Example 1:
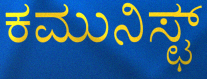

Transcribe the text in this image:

ಕಮುನಿಸ್ಟ್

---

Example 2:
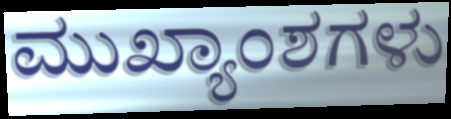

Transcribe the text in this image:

ಮುಖ್ಯಾಂಶಗಳು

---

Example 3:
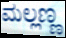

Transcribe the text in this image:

ಮಲ್ಲಣ್ಣ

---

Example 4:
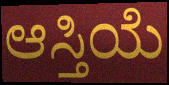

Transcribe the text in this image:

ಆಸ್ತಿಯೆ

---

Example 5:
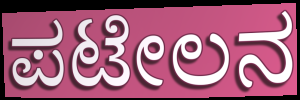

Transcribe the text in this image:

ಪಟೇಲನ